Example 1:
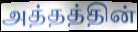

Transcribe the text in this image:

அத்தத்தின்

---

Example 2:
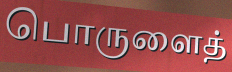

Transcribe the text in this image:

பொருளைத்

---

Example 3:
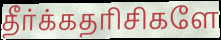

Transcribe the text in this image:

தீர்க்கதரிசிகளே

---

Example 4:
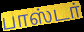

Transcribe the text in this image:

பாஸ்டர்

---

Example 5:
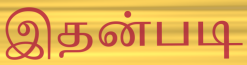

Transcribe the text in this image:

இதன்படி